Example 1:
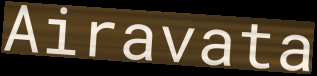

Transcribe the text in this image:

Airavata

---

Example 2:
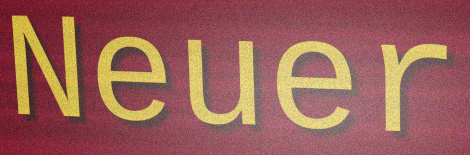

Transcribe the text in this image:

Neuer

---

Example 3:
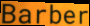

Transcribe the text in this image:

Barber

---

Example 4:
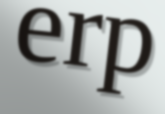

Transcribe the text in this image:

erp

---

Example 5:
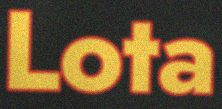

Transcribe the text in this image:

Lota